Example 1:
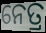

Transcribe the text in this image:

ନେତ୍ର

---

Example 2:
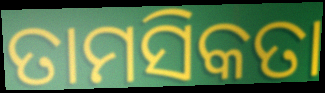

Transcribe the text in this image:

ତାମସିକତା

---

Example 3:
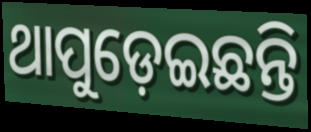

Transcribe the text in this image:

ଥାପୁଡ଼େଇଛନ୍ତି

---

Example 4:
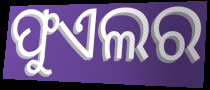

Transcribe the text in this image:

ଫୁଏଲର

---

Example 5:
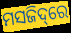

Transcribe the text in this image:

ମସଜିଦ୍‌ରେ